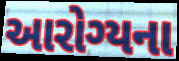
આરોગ્યના